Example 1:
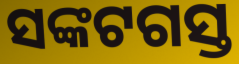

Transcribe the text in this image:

ସଙ୍କଟଗସ୍ତ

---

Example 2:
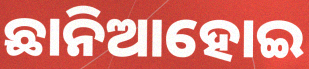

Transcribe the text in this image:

ଛାନିଆହୋଇ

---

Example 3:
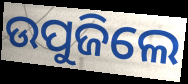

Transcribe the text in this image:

ଉପୁଜିଲେ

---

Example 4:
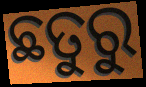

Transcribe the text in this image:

ଛତୁରୁ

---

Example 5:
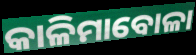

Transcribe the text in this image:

କାଳିମାବୋଳା